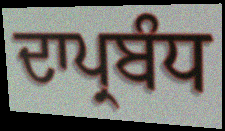
ਦਾਪ੍ਰਬੰਧ